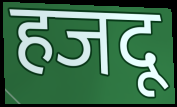
हजदू